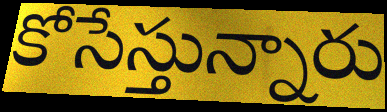
కోసేస్తున్నారు